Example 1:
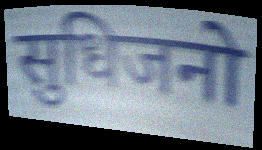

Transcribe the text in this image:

सुधिजनो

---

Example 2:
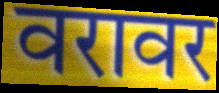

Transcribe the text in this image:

वरावर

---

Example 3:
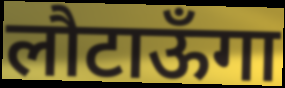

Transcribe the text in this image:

लौटाऊँगा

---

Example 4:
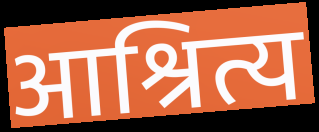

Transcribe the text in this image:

आश्रित्य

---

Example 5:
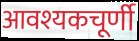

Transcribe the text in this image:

आवश्यकचूर्णी